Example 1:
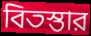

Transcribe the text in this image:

বিতস্তার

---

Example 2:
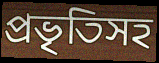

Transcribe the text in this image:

প্রভৃতিসহ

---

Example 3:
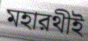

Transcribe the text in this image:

মহারথীই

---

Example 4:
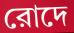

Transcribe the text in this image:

রোদে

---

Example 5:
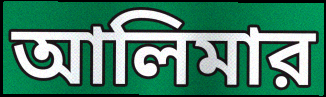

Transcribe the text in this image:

আলিমার